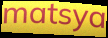
matsya